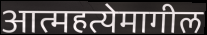
आत्महत्येमागील